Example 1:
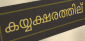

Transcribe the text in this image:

കയ്യക്ഷരത്തില്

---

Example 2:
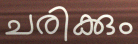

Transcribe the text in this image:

ചരിക്കും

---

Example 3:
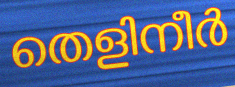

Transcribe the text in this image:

തെളിനീർ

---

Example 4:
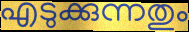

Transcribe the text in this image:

എടുക്കുന്നതും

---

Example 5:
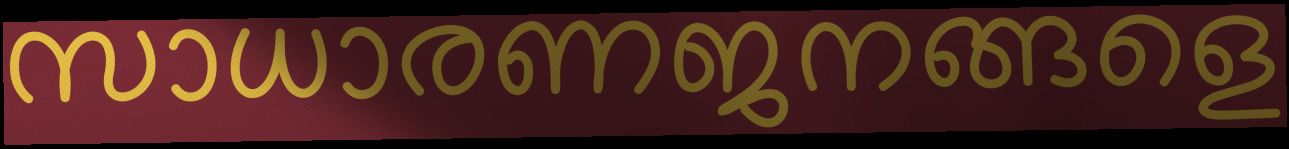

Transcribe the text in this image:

സാധാരണജനങ്ങളെ